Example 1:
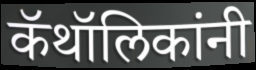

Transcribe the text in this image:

कॅथॉलिकांनी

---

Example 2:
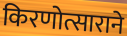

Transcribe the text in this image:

किरणोत्साराने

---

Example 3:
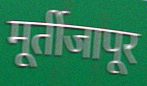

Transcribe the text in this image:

मूर्तीजापूर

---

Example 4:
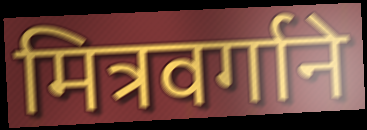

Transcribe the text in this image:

मित्रवर्गाने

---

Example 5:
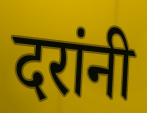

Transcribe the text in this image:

दरांनी